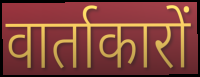
वार्ताकारों